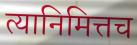
त्यानिमित्तच